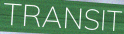
TRANSIT